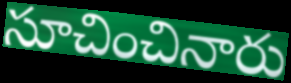
సూచించినారు